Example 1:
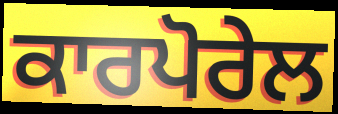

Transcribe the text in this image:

ਕਾਰਪੋਰੇਲ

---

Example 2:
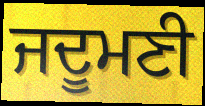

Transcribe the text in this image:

ਜਦੂਮਣੀ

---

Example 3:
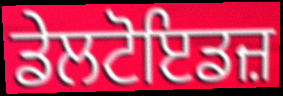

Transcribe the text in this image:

ਡੇਲਟੋਇਡਜ਼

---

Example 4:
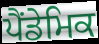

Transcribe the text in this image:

ਪੈਂਡੇਮਿਕ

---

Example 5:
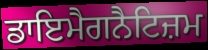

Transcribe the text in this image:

ਡਾਇਮੈਗਨੈਟਿਜ਼ਮ